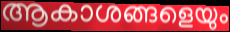
ആകാശങ്ങളെയും